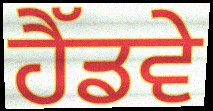
ਹੈੱਡਵੇ